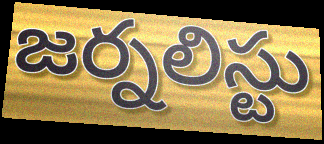
జర్నలిస్టు